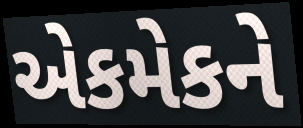
એકમેકને